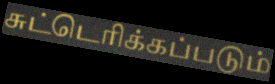
சுட்டெரிக்கப்படும்